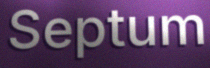
Septum